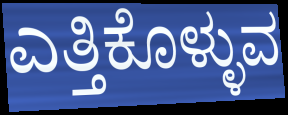
ಎತ್ತಿಕೊಳ್ಳುವ